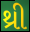
થ્રી